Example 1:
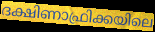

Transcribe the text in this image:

ദക്ഷിണാഫ്രിക്കയിലെ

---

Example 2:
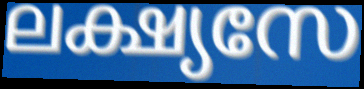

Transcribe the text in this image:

ലക്ഷ്യസേ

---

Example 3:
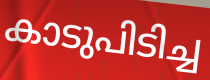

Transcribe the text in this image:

കാടുപിടിച്ച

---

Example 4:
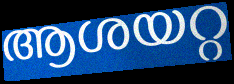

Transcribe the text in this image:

ആശയറ്റ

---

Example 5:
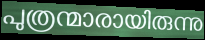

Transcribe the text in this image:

പുത്രന്മാരായിരുന്നു